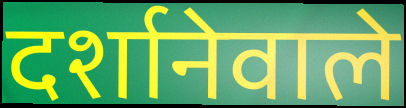
दर्शानेवाले